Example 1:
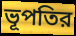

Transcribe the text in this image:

ভূপতির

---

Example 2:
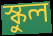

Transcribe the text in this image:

স্কুল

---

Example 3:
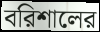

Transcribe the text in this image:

বরিশালের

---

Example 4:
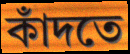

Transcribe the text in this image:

কাঁদতে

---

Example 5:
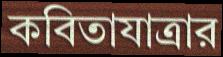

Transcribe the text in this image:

কবিতাযাত্রার